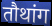
तौथांग